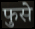
फुसे